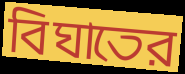
বিঘাতের